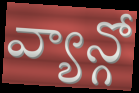
వ్యాన్గో